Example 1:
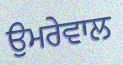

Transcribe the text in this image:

ਉਮਰੇਵਾਲ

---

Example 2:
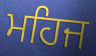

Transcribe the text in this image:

ਮਹਿਜ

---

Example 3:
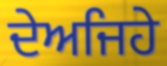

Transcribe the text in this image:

ਦੇਅਜਿਹੇ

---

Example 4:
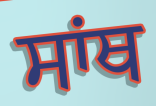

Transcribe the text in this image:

ਸਾਂਥ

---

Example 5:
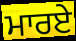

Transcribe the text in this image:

ਮਾਰਏ